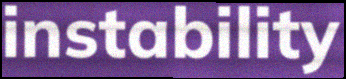
instability